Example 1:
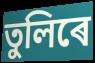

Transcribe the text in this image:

তুলিৰে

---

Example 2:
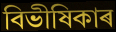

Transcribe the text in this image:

বিভীষিকাৰ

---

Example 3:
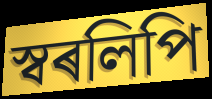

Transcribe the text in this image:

স্বৰলিপি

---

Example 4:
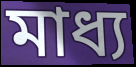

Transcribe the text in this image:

মাধ্য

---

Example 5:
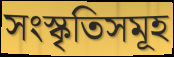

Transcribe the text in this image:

সংস্কৃতিসমূহ